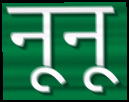
नूनू